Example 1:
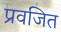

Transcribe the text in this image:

प्रवजित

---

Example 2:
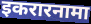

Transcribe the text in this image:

इकरारनामा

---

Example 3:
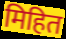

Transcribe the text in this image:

मिहित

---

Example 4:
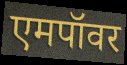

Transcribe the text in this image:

एमपॉवर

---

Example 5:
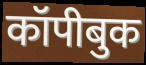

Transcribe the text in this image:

कॉपीबुक